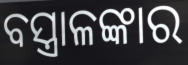
ବସ୍ତ୍ରାଳଙ୍କାର